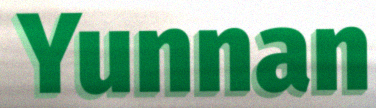
Yunnan